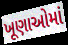
ખૂણાઓમાં